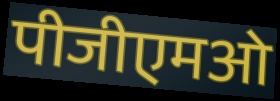
पीजीएमओ